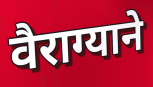
वैराग्याने